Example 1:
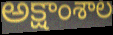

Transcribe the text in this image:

అక్షాంశాల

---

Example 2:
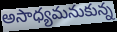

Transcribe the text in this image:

అసాధ్యమనుకున్న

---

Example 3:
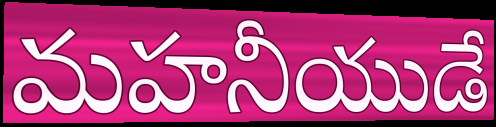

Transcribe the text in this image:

మహనీయుడే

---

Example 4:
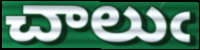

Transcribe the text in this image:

చాలుఁ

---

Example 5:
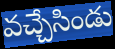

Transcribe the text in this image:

వచ్చేసిండు